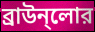
ব্রাউন্লোর